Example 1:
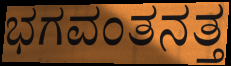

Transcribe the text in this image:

ಭಗವಂತನತ್ತ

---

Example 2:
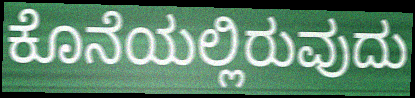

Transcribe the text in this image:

ಕೊನೆಯಲ್ಲಿರುವುದು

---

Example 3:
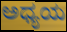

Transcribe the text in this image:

ಅಧ್ಯಯ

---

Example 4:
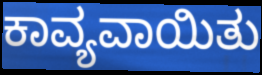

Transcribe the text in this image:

ಕಾವ್ಯವಾಯಿತು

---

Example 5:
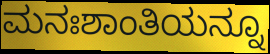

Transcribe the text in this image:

ಮನಃಶಾಂತಿಯನ್ನೂ